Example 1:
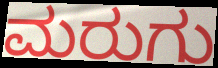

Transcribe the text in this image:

ಮರುಗು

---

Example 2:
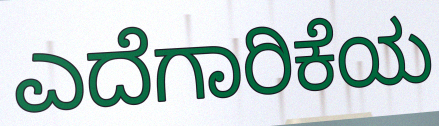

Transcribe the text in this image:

ಎದೆಗಾರಿಕೆಯ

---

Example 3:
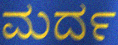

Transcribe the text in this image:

ಮರ್ದ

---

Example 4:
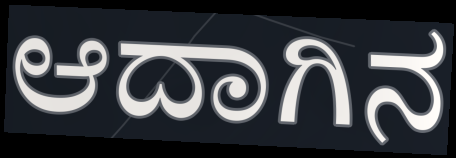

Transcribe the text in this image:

ಆದಾಗಿನ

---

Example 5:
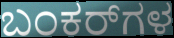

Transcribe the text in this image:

ಬಂಕರ್‌ಗಳ